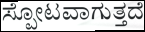
ಸ್ಪೋಟವಾಗುತ್ತದೆ